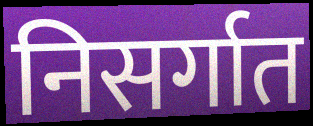
निसर्गात